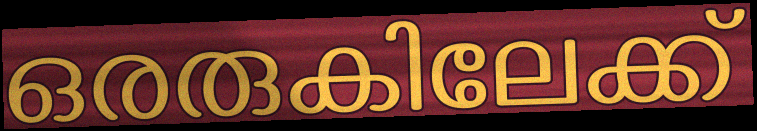
ഒരരുകിലേക്ക്